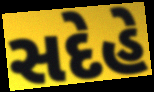
સદેહે